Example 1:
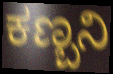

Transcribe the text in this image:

ಕಣ್ಬನಿ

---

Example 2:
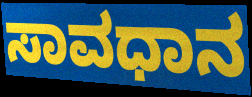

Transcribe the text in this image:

ಸಾವಧಾನ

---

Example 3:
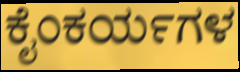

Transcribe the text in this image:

ಕೈಂಕರ್ಯಗಳ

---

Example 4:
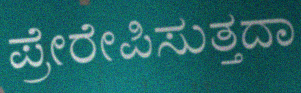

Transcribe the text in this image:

ಪ್ರೇರೇಪಿಸುತ್ತದಾ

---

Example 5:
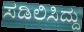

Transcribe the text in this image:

ಸಡಿಲಿಸಿದ್ದು